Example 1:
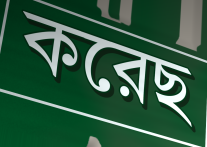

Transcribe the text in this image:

করেছ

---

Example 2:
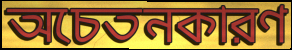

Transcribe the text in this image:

অচেতনকারণ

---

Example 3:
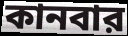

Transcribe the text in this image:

কানবার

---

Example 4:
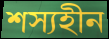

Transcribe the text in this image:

শস্যহীন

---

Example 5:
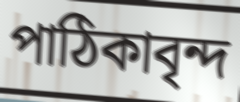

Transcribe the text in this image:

পাঠিকাবৃন্দ